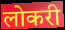
लोकरी